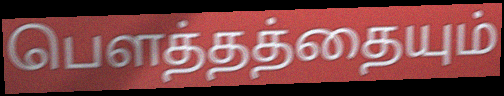
பெளத்தத்தையும்